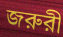
জরুরী